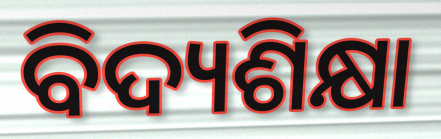
ବିଦ୍ୟଶିକ୍ଷା